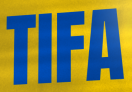
TIFA